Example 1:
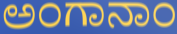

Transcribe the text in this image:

ಅಂಗಾನಾಂ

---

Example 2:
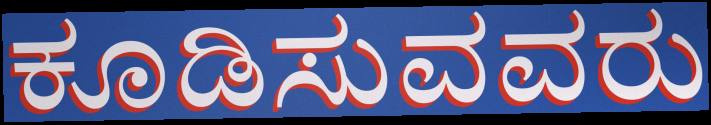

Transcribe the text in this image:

ಕೂಡಿಸುವವರು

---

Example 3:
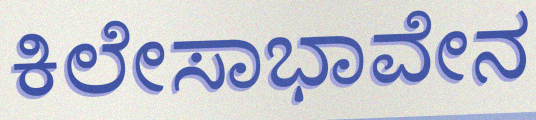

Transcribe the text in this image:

ಕಿಲೇಸಾಭಾವೇನ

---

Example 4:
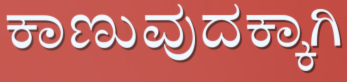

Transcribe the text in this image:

ಕಾಣುವುದಕ್ಕಾಗಿ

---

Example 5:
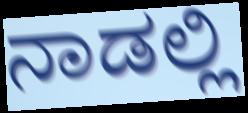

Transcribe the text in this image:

ನಾಡಲ್ಲಿ